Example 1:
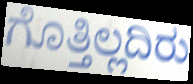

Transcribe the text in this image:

ಗೊತ್ತಿಲ್ಲದಿರು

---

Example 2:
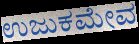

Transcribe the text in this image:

ಉಜುಕಮೇವ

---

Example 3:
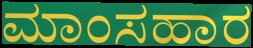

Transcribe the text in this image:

ಮಾಂಸಹಾರ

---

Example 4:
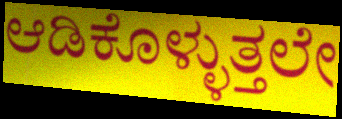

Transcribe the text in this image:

ಆಡಿಕೊಳ್ಳುತ್ತಲೇ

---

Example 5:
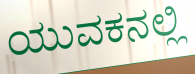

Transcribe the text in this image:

ಯುವಕನಲ್ಲಿ